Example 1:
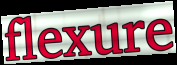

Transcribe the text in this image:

flexure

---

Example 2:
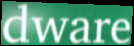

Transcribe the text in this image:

dware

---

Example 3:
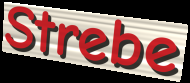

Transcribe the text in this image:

Strebe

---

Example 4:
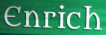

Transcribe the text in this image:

Enrich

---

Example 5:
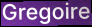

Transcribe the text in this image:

Gregoire